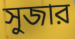
সুজার